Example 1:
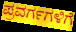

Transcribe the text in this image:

ಪ್ರವರ್ಗಗಳಿಗೆ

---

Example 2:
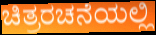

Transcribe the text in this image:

ಚಿತ್ರರಚನೆಯಲ್ಲಿ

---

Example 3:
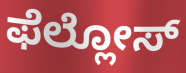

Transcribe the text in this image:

ಫೆಲ್ಲೋಸ್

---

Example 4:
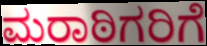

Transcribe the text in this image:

ಮರಾಠಿಗರಿಗೆ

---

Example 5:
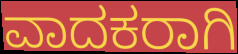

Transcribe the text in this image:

ವಾದಕರಾಗಿ